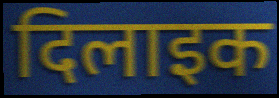
दिलाइक